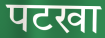
पटखा